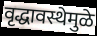
वृद्धावस्थेमुळे